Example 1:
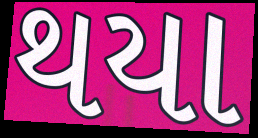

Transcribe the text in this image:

થયા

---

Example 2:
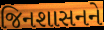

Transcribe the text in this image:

જિનશાસનને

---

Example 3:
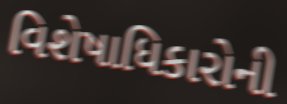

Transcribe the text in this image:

વિશેષાધિકારોની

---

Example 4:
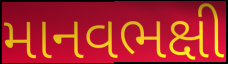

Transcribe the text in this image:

માનવભક્ષી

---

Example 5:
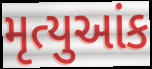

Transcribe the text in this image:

મૃત્યુઆંક